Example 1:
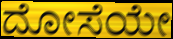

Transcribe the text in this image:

ದೋಸೆಯೇ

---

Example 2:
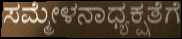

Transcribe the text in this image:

ಸಮ್ಮೇಳನಾಧ್ಯಕ್ಷತೆಗೆ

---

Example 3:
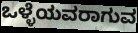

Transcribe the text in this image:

ಒಳ್ಳೆಯವರಾಗುವ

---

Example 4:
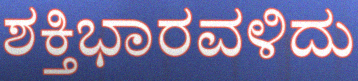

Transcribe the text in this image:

ಶಕ್ತಿಭಾರವಳಿದು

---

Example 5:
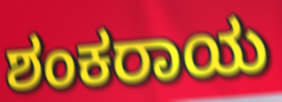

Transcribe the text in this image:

ಶಂಕರಾಯ